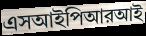
এসআইপিআরআই